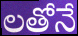
లతోనే